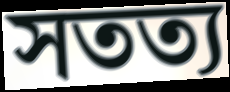
সতত্য